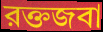
রক্তজবা